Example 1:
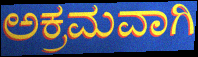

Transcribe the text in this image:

ಅಕ್ರಮವಾಗಿ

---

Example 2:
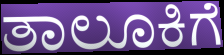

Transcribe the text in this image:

ತಾಲೂಕಿಗೆ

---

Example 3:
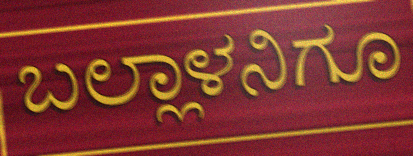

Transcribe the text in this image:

ಬಲ್ಲಾಳನಿಗೂ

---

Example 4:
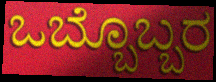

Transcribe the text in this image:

ಒಬ್ಬೊಬ್ಬರ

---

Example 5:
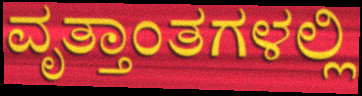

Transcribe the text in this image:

ವೃತ್ತಾಂತಗಳಲ್ಲಿ